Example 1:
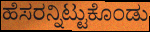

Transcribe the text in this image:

ಹೆಸರನ್ನಿಟ್ಟುಕೊಂಡು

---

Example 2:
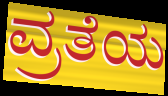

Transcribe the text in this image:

ವ್ರತೆಯ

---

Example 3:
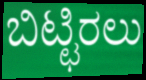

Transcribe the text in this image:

ಬಿಟ್ಟಿರಲು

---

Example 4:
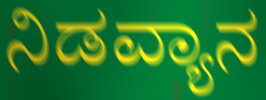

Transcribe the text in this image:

ನಿಡವ್ಯಾನ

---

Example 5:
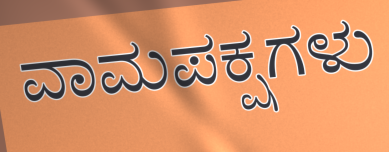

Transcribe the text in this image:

ವಾಮಪಕ್ಷಗಳು